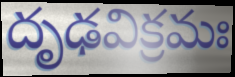
దృఢవిక్రమః